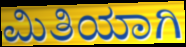
ಮಿತಿಯಾಗಿ